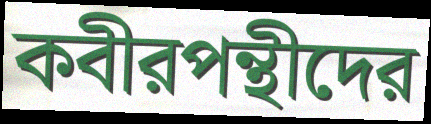
কবীরপন্থীদের